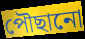
পৌছানো